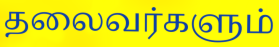
தலைவர்களும்